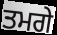
ਤਮਗੇ